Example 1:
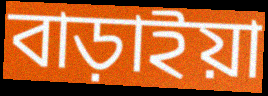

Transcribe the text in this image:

বাড়াইয়া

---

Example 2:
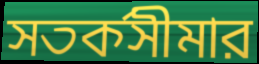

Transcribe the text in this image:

সতর্কসীমার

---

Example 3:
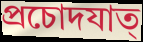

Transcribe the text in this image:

প্রচোদযাত্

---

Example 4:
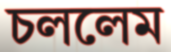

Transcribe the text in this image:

চললেম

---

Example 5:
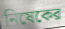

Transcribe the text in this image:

নিষেকের